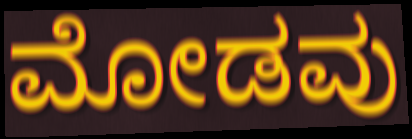
ಮೋಡವು